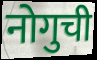
नोगुची